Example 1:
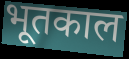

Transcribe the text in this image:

भूतकाल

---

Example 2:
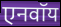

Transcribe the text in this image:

एनवॉय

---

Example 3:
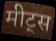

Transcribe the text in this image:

मीट्स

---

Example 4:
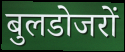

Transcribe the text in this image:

बुलडोजरों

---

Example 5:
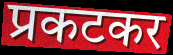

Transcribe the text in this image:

प्रकटकर